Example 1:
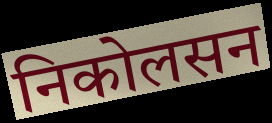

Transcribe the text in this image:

निकोलसन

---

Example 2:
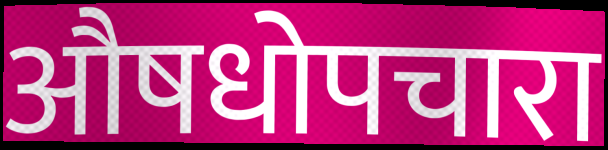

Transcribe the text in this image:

औषधोपचारा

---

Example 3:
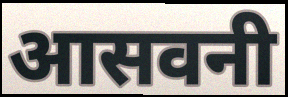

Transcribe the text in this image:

आसवनी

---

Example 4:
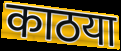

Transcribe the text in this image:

काठया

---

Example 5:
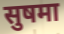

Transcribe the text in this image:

सुषमा